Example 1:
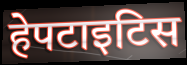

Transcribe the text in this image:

हेपटाइटिस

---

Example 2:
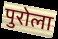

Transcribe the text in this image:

पुरोला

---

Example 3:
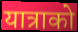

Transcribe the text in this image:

यात्राको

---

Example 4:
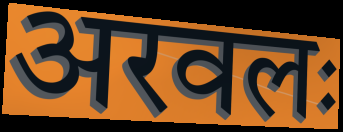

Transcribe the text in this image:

अरवलः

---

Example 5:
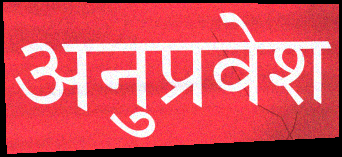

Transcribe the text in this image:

अनुप्रवेश